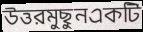
উত্তরমুছুনএকটি